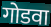
गोडवा